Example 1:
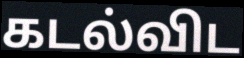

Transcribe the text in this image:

கடல்விட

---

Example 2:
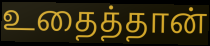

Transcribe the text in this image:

உதைத்தான்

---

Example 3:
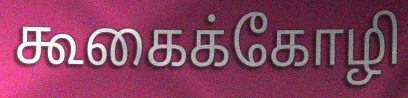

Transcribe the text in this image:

கூகைக்கோழி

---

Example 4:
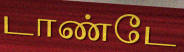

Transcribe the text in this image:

டாண்டே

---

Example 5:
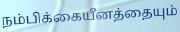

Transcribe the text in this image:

நம்பிக்கையீனத்தையும்